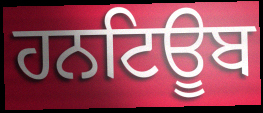
ਹਨਟਿਊਬ